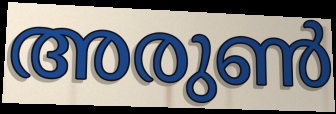
അരുൺ